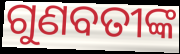
ଗୁଣବତୀଙ୍କ